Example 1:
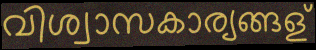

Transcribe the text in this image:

വിശ്വാസകാര്യങ്ങള്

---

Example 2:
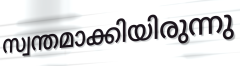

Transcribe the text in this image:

സ്വന്തമാക്കിയിരുന്നു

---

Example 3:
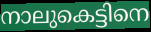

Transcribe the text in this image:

നാലുകെട്ടിനെ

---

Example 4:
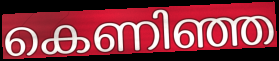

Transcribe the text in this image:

കെണിഞ്ഞ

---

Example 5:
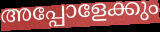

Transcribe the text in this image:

അപ്പോളേക്കും